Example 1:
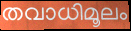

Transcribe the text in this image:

തവാധിമൂലം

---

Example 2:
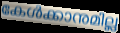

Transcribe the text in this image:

കേൾക്കാനുമില്ല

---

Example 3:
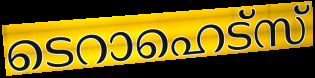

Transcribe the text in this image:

ടെറാഹെട്സ്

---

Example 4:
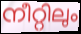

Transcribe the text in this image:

നീറ്റിലും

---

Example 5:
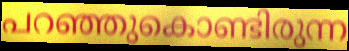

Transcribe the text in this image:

പറഞ്ഞുകൊണ്ടിരുന്ന